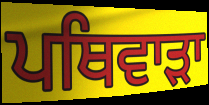
ਪਥਿਵਾੜਾ